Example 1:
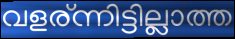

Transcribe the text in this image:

വളര്ന്നിട്ടില്ലാത്ത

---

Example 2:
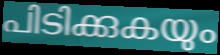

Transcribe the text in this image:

പിടിക്കുകയും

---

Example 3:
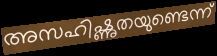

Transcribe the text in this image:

അസഹിഷ്ണുതയുണ്ടെന്ന്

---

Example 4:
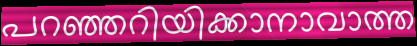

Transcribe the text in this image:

പറഞ്ഞറിയിക്കാനാവാത്ത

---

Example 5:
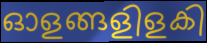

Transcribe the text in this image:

ഓളങ്ങളിളകി